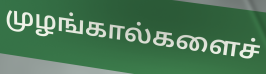
முழங்கால்களைச்